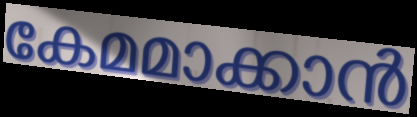
കേമമാക്കാൻ